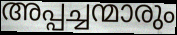
അപ്പച്ചന്മാരും